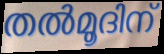
തൽമൂദിന്